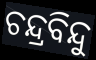
ଚନ୍ଦ୍ରବିନ୍ଦୁ